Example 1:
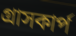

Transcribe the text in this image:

গ্রাসকার্প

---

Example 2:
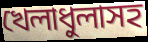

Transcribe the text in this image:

খেলাধুলাসহ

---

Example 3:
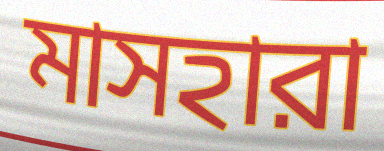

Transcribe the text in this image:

মাসহারা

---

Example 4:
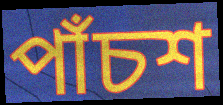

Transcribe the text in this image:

পাঁচশ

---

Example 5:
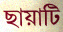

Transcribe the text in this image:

ছায়াটি